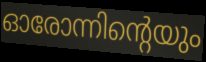
ഓരോന്നിന്റെയും